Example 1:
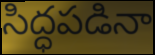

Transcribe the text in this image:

సిద్ధపడినా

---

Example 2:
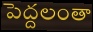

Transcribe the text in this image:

పెద్దలంతా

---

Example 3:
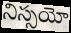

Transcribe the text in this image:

నిస్సయో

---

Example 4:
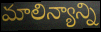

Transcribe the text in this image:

మాలిన్యాన్ని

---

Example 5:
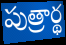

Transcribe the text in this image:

పుత్రార్థ